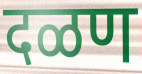
दळण